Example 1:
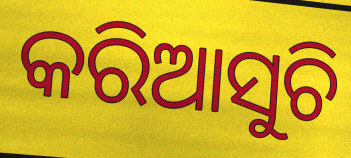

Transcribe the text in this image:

କରିଆସୁଚି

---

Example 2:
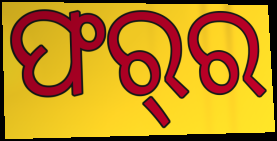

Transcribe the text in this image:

ଫର୍‌ର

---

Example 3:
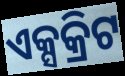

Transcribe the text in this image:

ଏକ୍ସକ୍ରିଟ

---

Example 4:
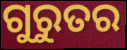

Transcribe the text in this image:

ଗୁରୁତର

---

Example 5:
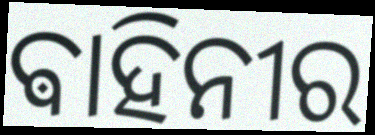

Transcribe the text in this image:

ଵାହିନୀର